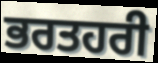
ਭਰਤਹਰੀ